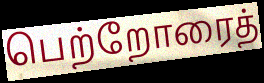
பெற்றோரைத்